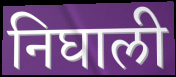
निघाली